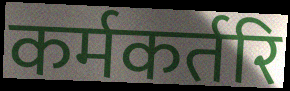
कर्मकर्तरि